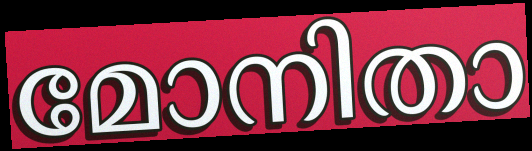
മോനിതാ